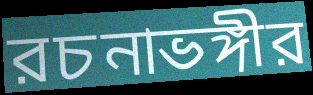
রচনাভঙ্গীর